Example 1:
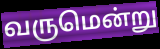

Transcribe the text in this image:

வருமென்று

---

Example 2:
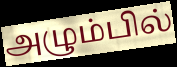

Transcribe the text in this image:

அழும்பில்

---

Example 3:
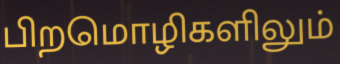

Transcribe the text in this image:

பிறமொழிகளிலும்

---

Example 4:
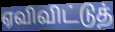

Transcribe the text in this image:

ஏவிவிட்டுத்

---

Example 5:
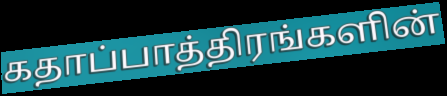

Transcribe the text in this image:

கதாப்பாத்திரங்களின்